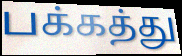
பக்கத்து